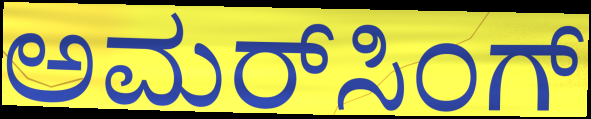
ಅಮರ್‌ಸಿಂಗ್